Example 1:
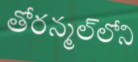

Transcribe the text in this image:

తోరన్మల్‌లోని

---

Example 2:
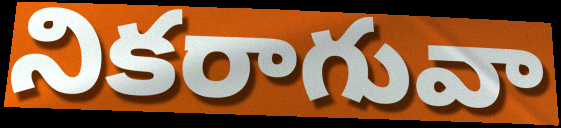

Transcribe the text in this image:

నికరాగువా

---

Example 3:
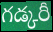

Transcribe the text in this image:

గడ్కరీ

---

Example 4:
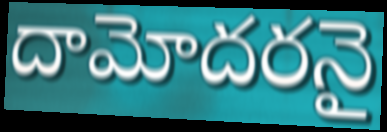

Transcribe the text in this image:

దామోదరనై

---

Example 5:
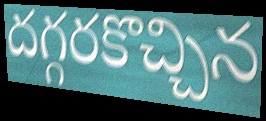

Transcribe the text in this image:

దగ్గరకొచ్చిన